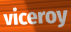
viceroy